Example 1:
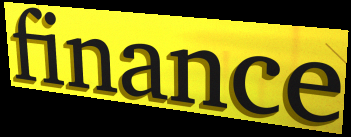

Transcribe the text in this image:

finance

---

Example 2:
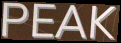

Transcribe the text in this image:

PEAK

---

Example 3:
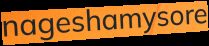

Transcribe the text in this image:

nageshamysore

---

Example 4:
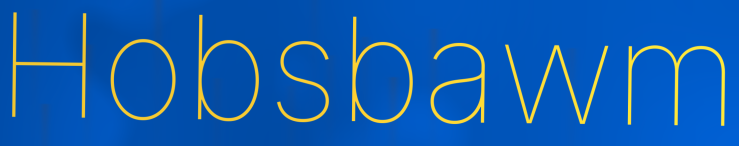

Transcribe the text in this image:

Hobsbawm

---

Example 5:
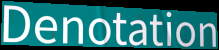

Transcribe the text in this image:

Denotation